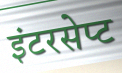
इंटरसेप्ट